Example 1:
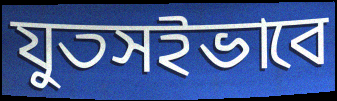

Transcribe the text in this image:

যুতসইভাবে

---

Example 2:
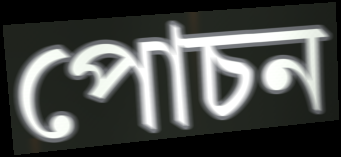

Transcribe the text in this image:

পোচন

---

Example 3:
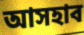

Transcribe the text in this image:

আসহাব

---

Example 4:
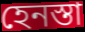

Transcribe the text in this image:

হেনস্তা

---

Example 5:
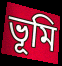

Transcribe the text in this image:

ভূমি